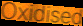
Oxidised